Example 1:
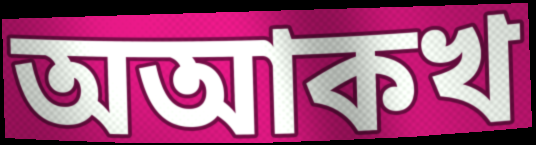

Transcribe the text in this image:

অআকখ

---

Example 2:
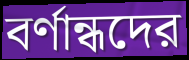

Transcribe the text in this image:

বর্ণান্ধদের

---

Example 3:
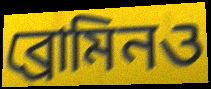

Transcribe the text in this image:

ব্রোমিনও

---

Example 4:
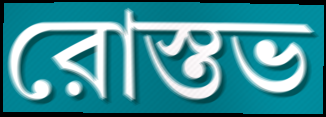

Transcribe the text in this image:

রোস্তভ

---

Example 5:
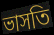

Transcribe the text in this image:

ভাসতি